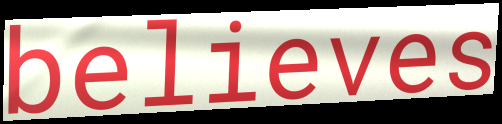
believes